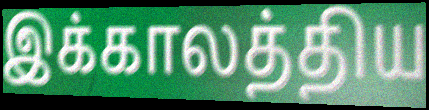
இக்காலத்திய